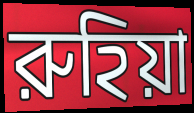
রুহিয়া